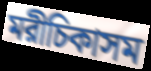
মরীচিকাসম